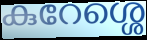
കുറേശ്ശെ